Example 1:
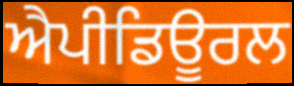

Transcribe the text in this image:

ਐਪੀਡਿਊਰਲ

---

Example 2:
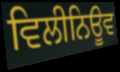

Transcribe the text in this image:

ਵਿਲੀਨਿਊਵ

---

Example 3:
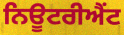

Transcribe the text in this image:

ਨਿਊਟਰੀਐਂਟ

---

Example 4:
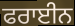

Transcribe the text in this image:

ਫਰਾਈਨ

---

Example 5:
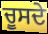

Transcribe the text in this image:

ਚੂਸਦੇ